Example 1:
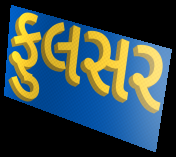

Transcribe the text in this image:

ફુલસર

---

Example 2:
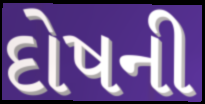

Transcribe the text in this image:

દોષની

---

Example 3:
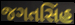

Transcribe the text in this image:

જગતસિંહ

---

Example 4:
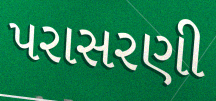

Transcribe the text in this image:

પરાસરણી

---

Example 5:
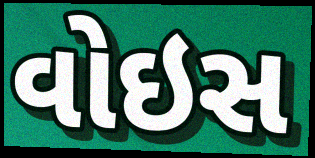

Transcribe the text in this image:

વોઇસ